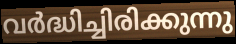
വർദ്ധിച്ചിരിക്കുന്നു